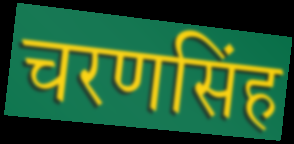
चरणसिंह